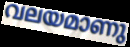
വലയമാണു